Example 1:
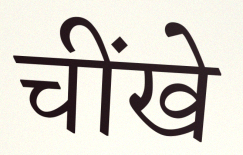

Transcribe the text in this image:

चींखे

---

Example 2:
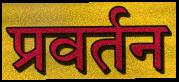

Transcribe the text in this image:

प्रवर्तन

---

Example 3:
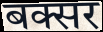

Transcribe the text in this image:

बक्सर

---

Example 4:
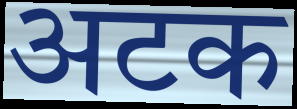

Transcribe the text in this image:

अटक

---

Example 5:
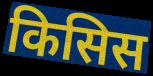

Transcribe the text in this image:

किसिस